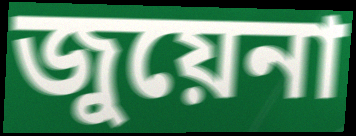
জুয়েনা